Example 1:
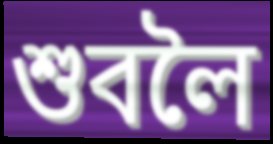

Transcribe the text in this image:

শুবলৈ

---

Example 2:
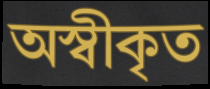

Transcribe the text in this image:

অস্বীকৃত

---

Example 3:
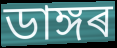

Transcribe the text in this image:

ডাঙ্গৰ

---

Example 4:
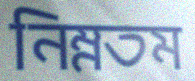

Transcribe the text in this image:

নিম্নতম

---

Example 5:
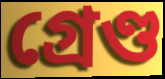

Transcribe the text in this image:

গ্ৰেণ্ড